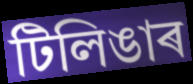
টিলিঙাৰ